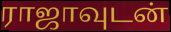
ராஜாவுடன்